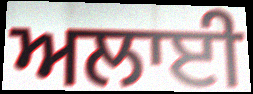
ਅਲਾਈ